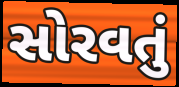
સોરવતું